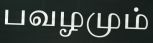
பவழமும்